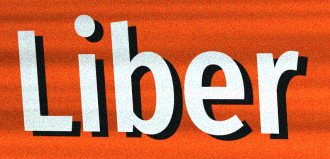
Liber